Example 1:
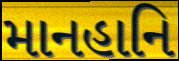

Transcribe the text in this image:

માનહાનિ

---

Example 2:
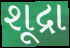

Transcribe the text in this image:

શૂદ્રા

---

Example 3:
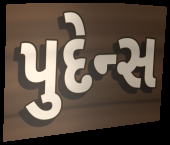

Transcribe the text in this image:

પુદેન્સ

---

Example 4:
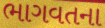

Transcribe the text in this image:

ભાગવતના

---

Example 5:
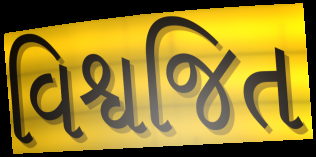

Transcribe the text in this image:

વિશ્વજિત